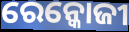
ରେନ୍କୋଜୀ